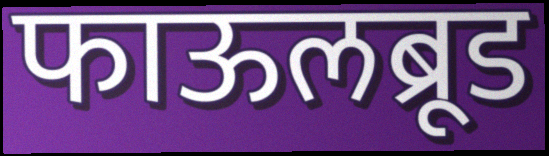
फाऊलब्रूड